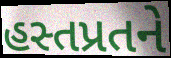
હસ્તપ્રતને